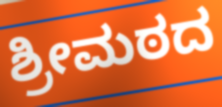
ಶ್ರೀಮಠದ